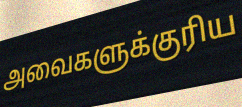
அவைகளுக்குரிய